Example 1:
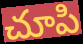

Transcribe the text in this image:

చూపి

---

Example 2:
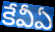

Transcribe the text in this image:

కేవీఏ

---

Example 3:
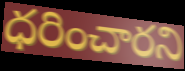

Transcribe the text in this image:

ధరించారని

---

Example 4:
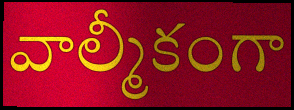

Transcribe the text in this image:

వాల్మీకంగా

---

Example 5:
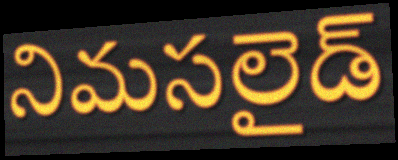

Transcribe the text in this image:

నిమసలైడ్